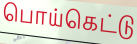
பொய்கெட்டு